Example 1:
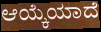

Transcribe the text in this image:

ಆಯ್ಕೆಯಾದೆ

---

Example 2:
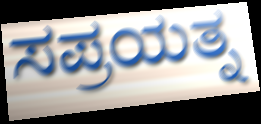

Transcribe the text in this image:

ಸಪ್ರಯತ್ನ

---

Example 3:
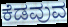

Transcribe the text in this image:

ಕೆಡವುವ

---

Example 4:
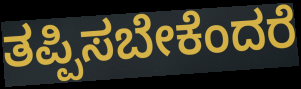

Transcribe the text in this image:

ತಪ್ಪಿಸಬೇಕೆಂದರೆ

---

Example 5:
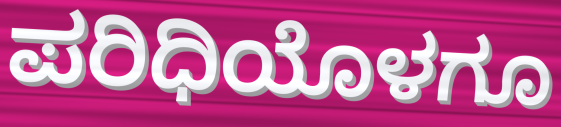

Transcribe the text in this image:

ಪರಿಧಿಯೊಳಗೂ